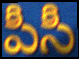
పీసీ